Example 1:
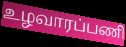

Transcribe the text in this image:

உழவாரப்பணி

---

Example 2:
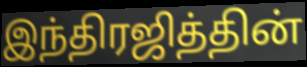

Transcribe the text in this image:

இந்திரஜித்தின்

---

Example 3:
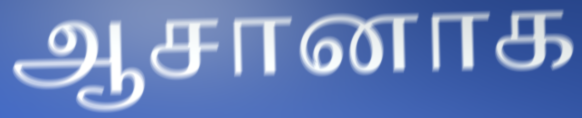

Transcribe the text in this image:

ஆசானாக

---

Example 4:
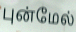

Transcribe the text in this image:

புன்மேல்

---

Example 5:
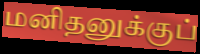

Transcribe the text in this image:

மனிதனுக்குப்